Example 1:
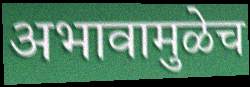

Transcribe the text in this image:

अभावामुळेच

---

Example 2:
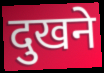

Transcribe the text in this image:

दुखने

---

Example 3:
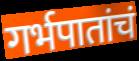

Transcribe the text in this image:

गर्भपातांचं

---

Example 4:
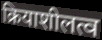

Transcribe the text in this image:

क्रियाशीलत्व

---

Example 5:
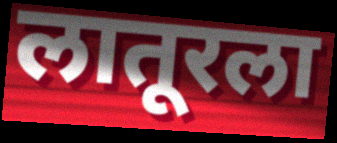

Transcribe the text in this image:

लातूरला